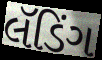
લૅડિંગ